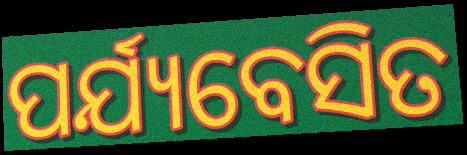
ପର୍ଯ୍ୟବେସିତ